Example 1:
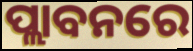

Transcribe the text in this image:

ପ୍ଲାବନରେ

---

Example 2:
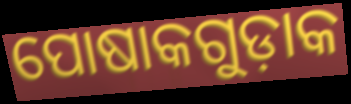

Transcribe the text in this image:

ପୋଷାକଗୁଡ଼ାକ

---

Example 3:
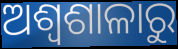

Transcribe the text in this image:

ଅଶ୍ୱଶାଳାରୁ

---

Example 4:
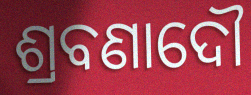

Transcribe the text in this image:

ଶ୍ରବଣାଦୌ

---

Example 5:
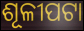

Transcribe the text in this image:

ଶୂଳୀପଟା